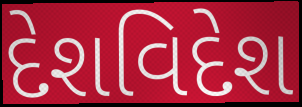
દેશવિદેશ